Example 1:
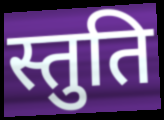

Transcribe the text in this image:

स्तुति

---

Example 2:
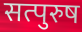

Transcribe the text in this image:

सत्पुरुष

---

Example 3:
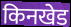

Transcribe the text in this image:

किनखेड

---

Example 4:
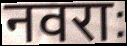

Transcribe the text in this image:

नवराः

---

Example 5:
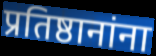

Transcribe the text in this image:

प्रतिष्ठानांना